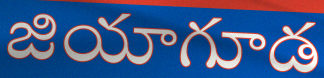
జియాగూడ